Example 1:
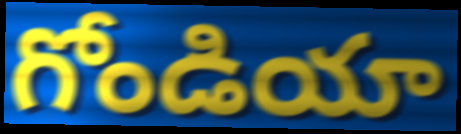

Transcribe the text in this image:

గోండియా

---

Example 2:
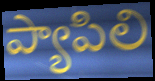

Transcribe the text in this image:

ప్యాపిలి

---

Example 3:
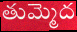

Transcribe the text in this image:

తుమ్మెద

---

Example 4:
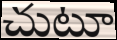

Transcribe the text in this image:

చుటూ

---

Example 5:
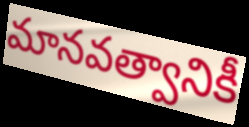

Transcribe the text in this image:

మానవత్వానికీ